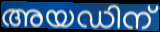
അയഡിന്